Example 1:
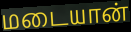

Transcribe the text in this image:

மடையான்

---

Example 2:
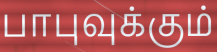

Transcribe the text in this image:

பாபுவுக்கும்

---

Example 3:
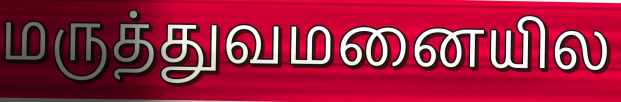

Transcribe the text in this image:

மருத்துவமனையில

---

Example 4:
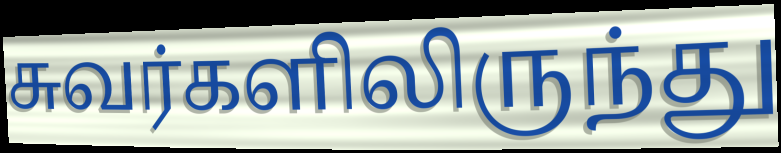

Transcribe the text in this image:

சுவர்களிலிருந்து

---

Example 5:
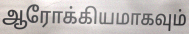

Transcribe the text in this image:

ஆரோக்கியமாகவும்